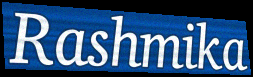
Rashmika